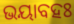
ଭୟାବହଃ